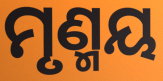
ମୃଣ୍ମୟ